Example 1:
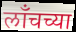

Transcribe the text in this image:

लाँचच्या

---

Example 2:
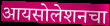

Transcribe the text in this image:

आयसोलेशनचा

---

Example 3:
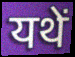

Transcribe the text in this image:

यथें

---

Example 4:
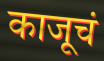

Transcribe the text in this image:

काजूचं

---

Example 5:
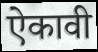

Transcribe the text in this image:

ऐकावी